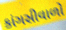
કાંગસીવાળો